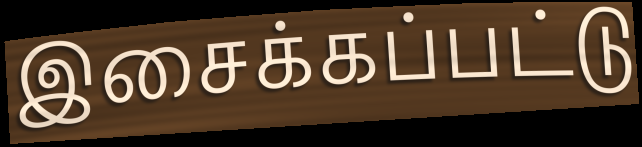
இசைக்கப்பட்டு